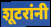
शूटरांनी